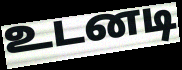
உடனடி